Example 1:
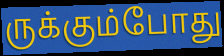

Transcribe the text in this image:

ருக்கும்போது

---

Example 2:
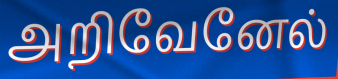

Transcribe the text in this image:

அறிவேனேல்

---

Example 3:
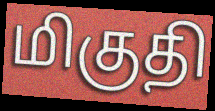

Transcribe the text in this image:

மிகுதி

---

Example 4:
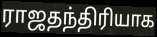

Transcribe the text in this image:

ராஜதந்திரியாக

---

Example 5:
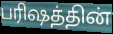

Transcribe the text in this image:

பரிஷத்தின்